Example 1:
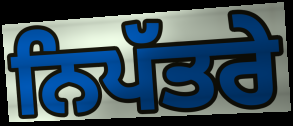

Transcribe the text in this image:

ਨਿਪੱਤਰੇ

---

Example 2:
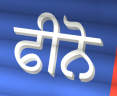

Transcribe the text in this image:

ਫੀਨੋ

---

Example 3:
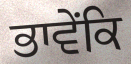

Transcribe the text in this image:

ਭਾਵੇਂਕਿ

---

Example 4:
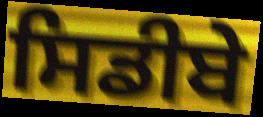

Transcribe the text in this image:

ਸਿਡੀਬੇ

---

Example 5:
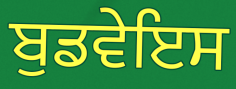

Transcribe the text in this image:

ਬੁਡਵੇਇਸ